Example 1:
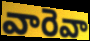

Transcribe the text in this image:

వారెవా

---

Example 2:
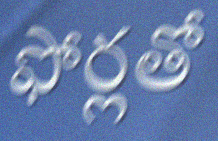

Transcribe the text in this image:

ఫోర్లతో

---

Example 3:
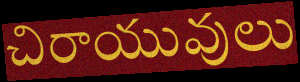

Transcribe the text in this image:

చిరాయువులు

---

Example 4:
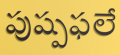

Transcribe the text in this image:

పుష్పఫలే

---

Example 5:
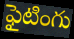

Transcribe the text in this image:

ఫైటింగు